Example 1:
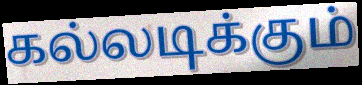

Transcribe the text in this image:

கல்லடிக்கும்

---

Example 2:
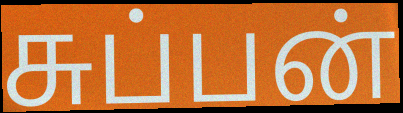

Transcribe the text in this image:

சுப்பன்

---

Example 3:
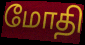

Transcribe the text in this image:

மோதி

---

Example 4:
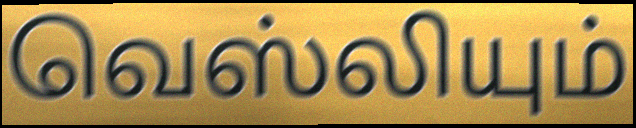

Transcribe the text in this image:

வெஸ்லியும்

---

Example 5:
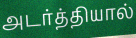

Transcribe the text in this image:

அடர்த்தியால்